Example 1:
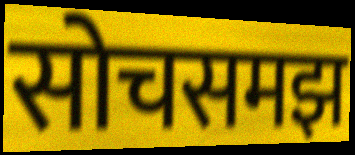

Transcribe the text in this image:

सोचसमझ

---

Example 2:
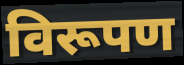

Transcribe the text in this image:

विरूपण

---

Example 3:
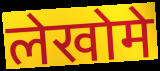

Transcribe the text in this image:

लेखोमे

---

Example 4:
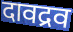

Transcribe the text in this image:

दावद्रव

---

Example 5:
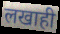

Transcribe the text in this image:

लखाही